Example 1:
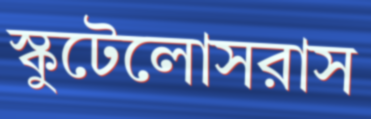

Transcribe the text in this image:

স্কুটেলোসরাস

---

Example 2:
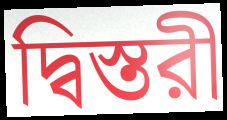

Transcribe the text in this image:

দ্বিস্তরী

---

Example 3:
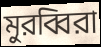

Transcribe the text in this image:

মুরব্বিরা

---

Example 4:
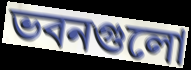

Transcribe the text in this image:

ভবনগুলো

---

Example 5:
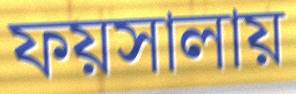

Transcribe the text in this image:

ফয়সালায়